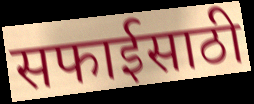
सफाईसाठी